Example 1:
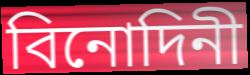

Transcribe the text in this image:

বিনোদিনী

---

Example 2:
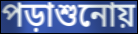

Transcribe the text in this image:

পড়াশুনোয়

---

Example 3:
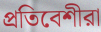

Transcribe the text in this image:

প্রতিবেশীরা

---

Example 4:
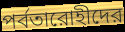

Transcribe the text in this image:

পর্বতারোহীদের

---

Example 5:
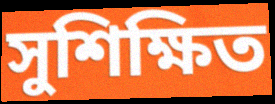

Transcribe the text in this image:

সুশিক্ষিত